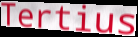
Tertius